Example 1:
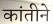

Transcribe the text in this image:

कांतीने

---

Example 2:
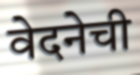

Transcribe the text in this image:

वेदनेची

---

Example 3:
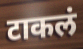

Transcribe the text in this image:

टाकलं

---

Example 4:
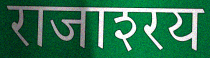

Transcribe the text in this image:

राजाश्रय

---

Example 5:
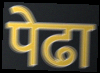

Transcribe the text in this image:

पेढा